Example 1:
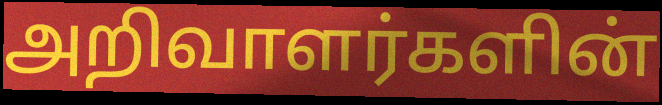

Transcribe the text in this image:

அறிவாளர்களின்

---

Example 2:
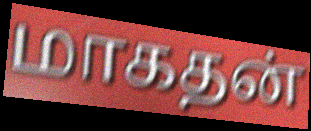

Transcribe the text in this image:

மாகதன்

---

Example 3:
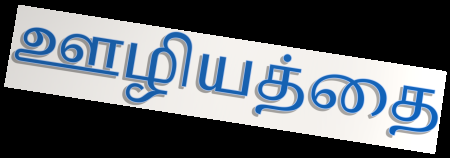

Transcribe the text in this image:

ஊழியத்தை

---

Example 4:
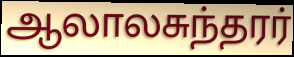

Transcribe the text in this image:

ஆலாலசுந்தரர்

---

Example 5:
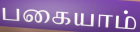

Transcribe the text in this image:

பகையாம்